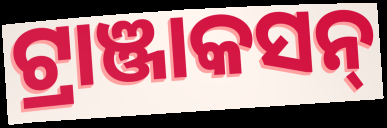
ଟ୍ରାଞ୍ଜାକସନ୍